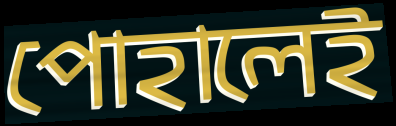
পোহালেই